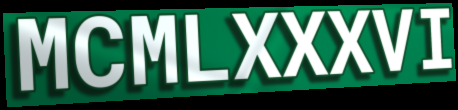
MCMLXXXVI